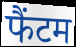
फैंटम